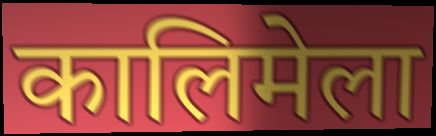
कालिमेला